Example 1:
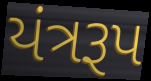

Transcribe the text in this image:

યંત્રરૂપ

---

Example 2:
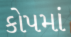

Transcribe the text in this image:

કોપમાં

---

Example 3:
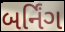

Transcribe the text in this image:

બર્નિંગ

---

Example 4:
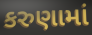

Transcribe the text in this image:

કરુણામાં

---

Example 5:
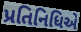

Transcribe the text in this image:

પ્રતિનિધિએ